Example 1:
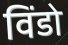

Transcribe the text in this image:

विंडो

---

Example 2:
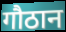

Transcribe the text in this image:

गौठान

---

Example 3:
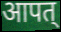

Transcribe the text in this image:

आपत्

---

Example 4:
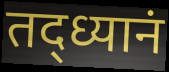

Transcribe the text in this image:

तद्ध्यानं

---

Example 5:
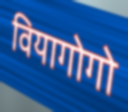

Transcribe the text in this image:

वियागोगो